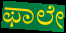
ಫಾಲೇ